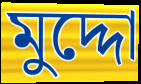
মুদ্দো